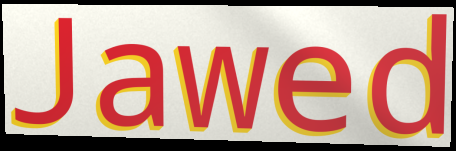
Jawed